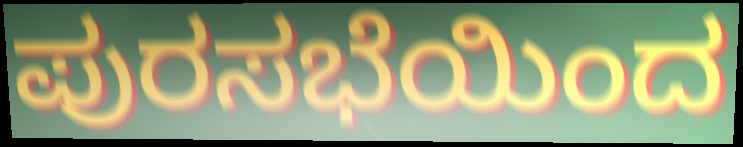
ಪುರಸಭೆಯಿಂದ